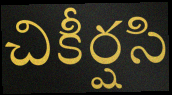
చికీర్షసి